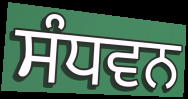
ਸੰਧਵਨ